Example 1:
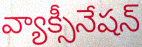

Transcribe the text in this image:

వ్యాక్సీనేషన్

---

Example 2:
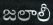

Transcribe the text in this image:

జలాలీ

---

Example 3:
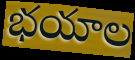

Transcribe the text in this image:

భయాల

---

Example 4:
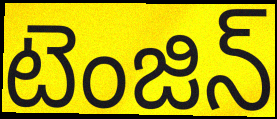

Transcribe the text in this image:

టెంజిన్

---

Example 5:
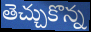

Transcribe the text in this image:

తెచ్చుకొన్న